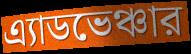
এ্যাডভেঞ্চার